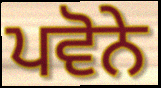
ਪਵੋਨੇ